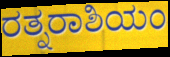
ರತ್ನರಾಶಿಯಂ